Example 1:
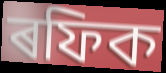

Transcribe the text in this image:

ৰফিক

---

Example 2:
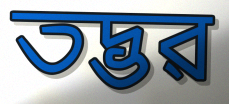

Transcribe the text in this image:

তদ্ভৱ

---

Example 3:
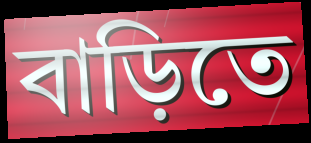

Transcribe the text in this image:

বাড়িতে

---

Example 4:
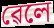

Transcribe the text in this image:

ৱেলে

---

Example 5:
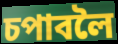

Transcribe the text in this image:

চপাবলৈ